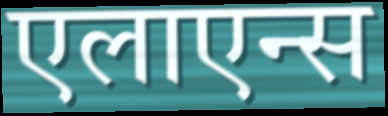
एलाएन्स